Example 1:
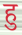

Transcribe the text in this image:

हु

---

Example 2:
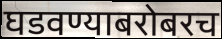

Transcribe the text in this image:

घडवण्याबरोबरच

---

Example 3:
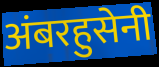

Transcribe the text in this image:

अंबरहुसेनी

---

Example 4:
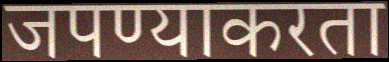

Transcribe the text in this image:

जपण्याकरता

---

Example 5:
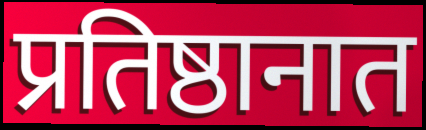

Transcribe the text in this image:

प्रतिष्ठानात